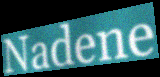
Nadene